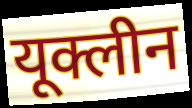
यूक्लीन